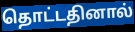
தொட்டதினால்